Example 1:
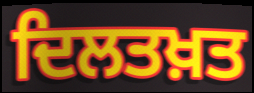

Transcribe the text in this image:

ਦਿਲਤਖ਼ਤ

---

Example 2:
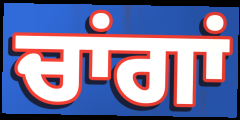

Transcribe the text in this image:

ਚਾਂਗਾਂ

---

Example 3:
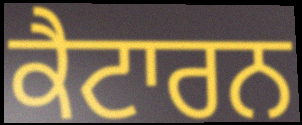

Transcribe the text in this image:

ਕੈਟਾਰਨ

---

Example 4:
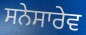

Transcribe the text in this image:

ਸਨੇਸਾਰੇਵ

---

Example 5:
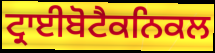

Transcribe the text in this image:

ਟ੍ਰਾਈਬੋਟੈਕਨਿਕਲ